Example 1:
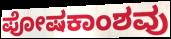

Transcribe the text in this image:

ಪೋಷಕಾಂಶವು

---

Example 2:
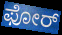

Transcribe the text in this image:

ಫೋರ್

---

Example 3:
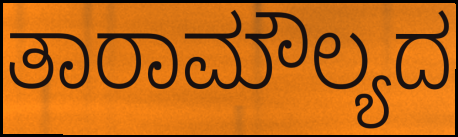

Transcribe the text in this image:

ತಾರಾಮೌಲ್ಯದ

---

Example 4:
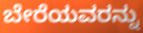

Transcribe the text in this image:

ಬೇರೆಯವರನ್ನು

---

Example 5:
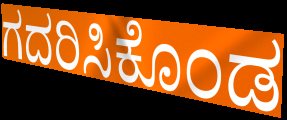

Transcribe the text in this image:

ಗದರಿಸಿಕೊಂಡ